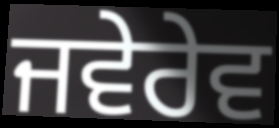
ਜਵੇਰੇਵ